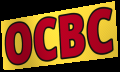
OCBC